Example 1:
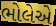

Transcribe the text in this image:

ભોલેએ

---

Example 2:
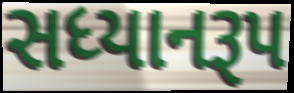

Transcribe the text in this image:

સધ્યાનરૂપ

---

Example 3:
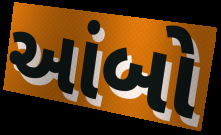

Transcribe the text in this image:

આંબો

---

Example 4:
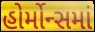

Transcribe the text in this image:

હોર્મોન્સમાં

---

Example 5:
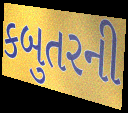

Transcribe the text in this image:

કબુતરની